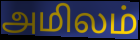
அமிலம்